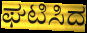
ಘಟಿಸಿದ